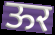
ऊर